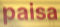
paisa